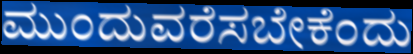
ಮುಂದುವರೆಸಬೇಕೆಂದು